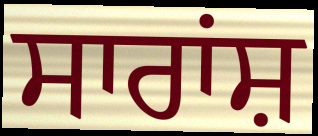
ਸਾਰਾਂਸ਼